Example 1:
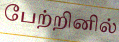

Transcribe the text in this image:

பேற்றினில்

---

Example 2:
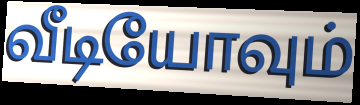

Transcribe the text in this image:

வீடியோவும்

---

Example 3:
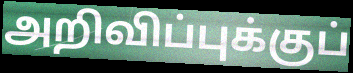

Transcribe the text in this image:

அறிவிப்புக்குப்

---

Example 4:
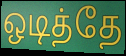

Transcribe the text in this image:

ஒடித்தே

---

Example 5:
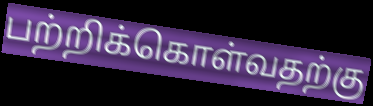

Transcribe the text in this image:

பற்றிக்கொள்வதற்கு